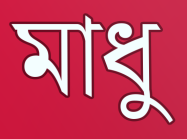
মাধু